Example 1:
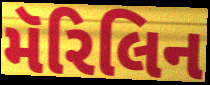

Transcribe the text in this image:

મૅરિલિન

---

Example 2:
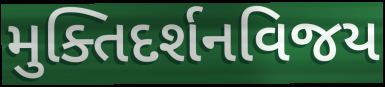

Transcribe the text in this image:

મુક્તિદર્શનવિજય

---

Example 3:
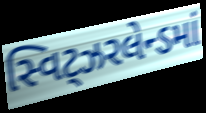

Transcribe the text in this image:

સ્વિટ્ઝરલેન્ડમાં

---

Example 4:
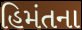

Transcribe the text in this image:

હિમંતના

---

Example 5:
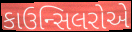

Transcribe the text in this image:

કાઉન્સિલરોએ